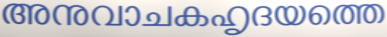
അനുവാചകഹൃദയത്തെ